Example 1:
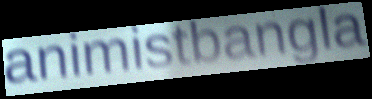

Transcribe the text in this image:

animistbangla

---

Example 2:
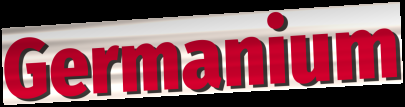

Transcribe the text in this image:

Germanium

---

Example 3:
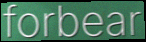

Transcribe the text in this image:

forbear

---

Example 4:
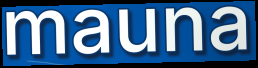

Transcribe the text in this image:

mauna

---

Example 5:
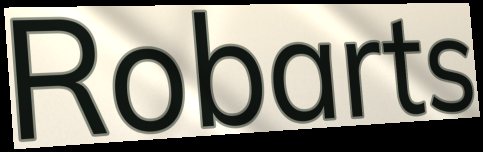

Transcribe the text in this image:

Robarts